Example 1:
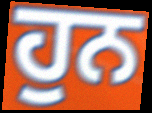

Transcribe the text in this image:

ਹੁਨ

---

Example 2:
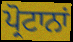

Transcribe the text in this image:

ਪ੍ਰੋਟਾਨਾਂ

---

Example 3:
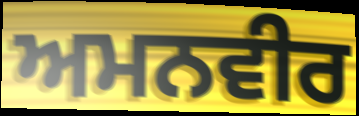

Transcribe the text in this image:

ਅਮਨਵੀਰ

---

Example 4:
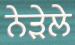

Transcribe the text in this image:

ਨੇੜੇਲੇ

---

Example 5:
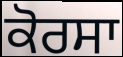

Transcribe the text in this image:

ਕੋਰਸਾ